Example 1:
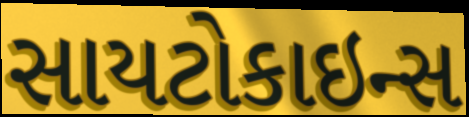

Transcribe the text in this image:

સાયટોકાઇન્સ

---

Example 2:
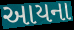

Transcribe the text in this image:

આયના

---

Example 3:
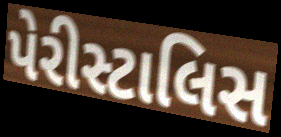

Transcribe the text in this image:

પેરીસ્ટાલિસ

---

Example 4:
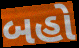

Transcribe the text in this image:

બહો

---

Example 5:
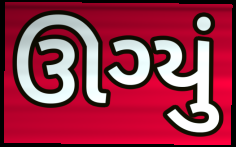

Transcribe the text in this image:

ઊગ્યું